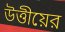
উত্তীয়ের